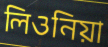
লিওনিয়া